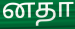
னதா